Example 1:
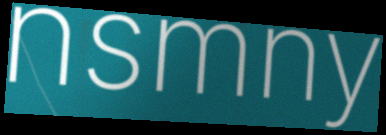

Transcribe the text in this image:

nsmny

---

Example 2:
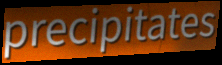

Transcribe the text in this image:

precipitates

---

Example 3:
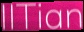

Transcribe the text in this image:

IITian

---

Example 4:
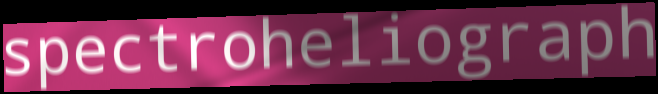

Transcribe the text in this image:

spectroheliograph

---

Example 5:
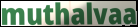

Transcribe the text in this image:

muthalvaa